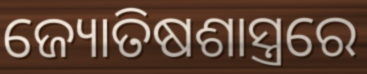
ଜ୍ୟୋତିଷଶାସ୍ତ୍ରରେ